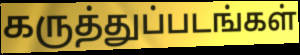
கருத்துப்படங்கள்